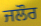
ਜਲੌਰ